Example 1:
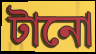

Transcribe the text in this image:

টানো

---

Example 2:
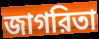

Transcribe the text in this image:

জাগরিতা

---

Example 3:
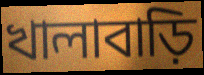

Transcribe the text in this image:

খালাবাড়ি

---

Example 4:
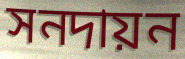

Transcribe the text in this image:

সনদায়ন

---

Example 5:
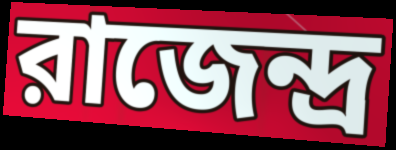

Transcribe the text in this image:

রাজেন্দ্র